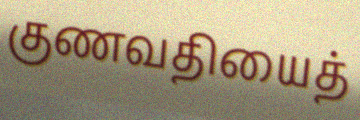
குணவதியைத்